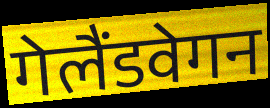
गेलैंडवेगन